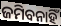
ଜମିବନାହିଁ